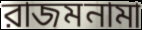
রাজমনামা